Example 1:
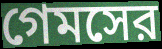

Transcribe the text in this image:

গেমসের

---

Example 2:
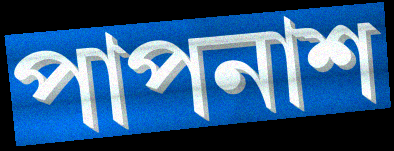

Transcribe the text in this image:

পাপনাশ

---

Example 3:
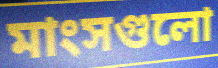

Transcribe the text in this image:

মাংসগুলো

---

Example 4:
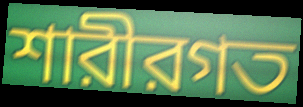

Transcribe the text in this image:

শারীরগত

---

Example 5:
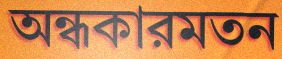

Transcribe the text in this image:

অন্ধকারমতন